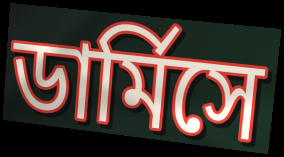
ডার্মিসে